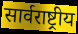
सार्वराष्ट्रीय